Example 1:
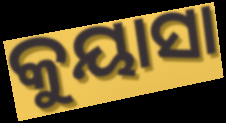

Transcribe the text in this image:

କୁୟାସା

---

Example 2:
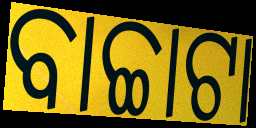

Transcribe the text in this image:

ବାଚ୍ଚାଟା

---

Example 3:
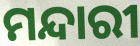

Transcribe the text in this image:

ମନ୍ଦାରୀ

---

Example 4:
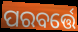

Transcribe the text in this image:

ପରବର୍ତ୍ତେ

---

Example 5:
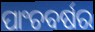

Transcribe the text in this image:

ପାଂଚବର୍ଷର